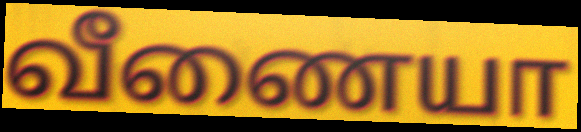
வீணையா